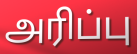
அரிப்பு